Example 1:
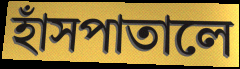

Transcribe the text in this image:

হাঁসপাতালে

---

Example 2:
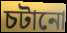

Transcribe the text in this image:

চটানো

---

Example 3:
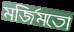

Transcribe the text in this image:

মর্জিমতো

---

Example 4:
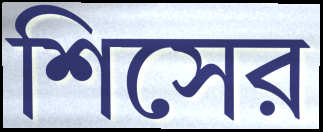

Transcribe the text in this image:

শিসের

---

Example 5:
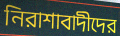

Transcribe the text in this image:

নিরাশাবাদীদের